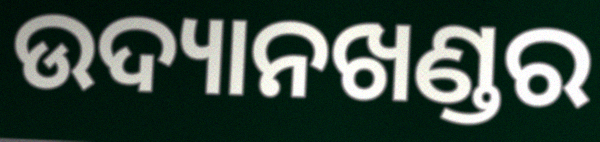
ଉଦ୍ୟାନଖଣ୍ଡର